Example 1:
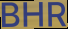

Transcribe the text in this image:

BHR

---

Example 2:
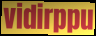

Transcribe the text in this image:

vidirppu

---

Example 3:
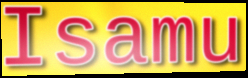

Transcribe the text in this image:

Isamu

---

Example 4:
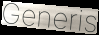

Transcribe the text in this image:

Generis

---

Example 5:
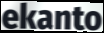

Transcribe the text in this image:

ekanto